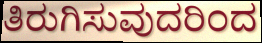
ತಿರುಗಿಸುವುದರಿಂದ